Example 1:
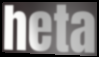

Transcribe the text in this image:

heta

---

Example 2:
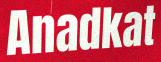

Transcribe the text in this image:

Anadkat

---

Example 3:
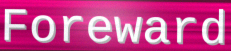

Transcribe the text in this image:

Foreward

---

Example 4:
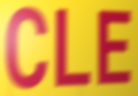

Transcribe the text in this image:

CLE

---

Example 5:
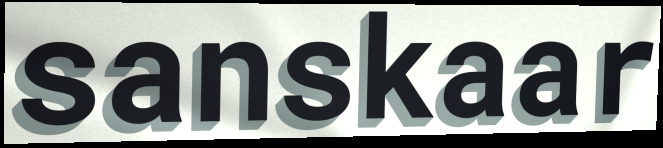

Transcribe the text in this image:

sanskaar